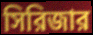
সিরিজার